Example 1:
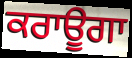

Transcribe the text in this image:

ਕਰਾਊਗਾ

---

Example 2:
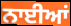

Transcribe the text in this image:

ਨਾਈਆਂ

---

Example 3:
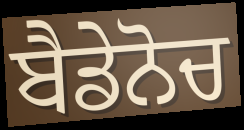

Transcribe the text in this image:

ਬੈਡੇਨੋਚ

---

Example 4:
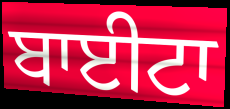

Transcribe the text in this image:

ਬਾਈਟਾ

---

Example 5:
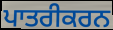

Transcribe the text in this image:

ਪਾਤਰੀਕਰਨ